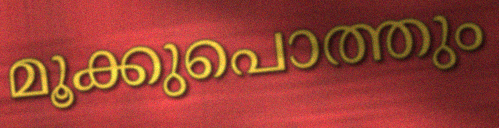
മൂക്കുപൊത്തും